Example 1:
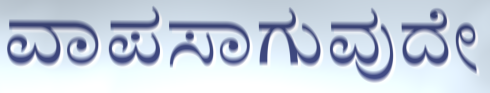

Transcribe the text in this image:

ವಾಪಸಾಗುವುದೇ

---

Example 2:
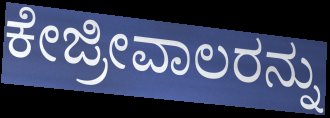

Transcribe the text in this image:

ಕೇಜ್ರೀವಾಲರನ್ನು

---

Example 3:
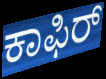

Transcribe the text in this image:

ಕಾಫಿರ್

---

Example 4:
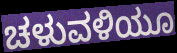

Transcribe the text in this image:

ಚಳುವಳಿಯೂ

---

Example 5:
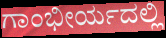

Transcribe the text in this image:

ಗಾಂಭೀರ್ಯದಲ್ಲಿ